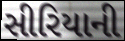
સીરિયાની